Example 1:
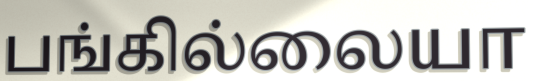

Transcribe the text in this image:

பங்கில்லையா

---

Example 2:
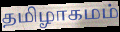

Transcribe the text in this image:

தமிழாகமம்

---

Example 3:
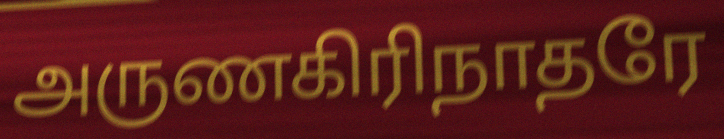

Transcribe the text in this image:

அருணகிரிநாதரே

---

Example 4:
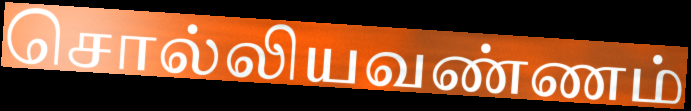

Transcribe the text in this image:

சொல்லியவண்ணம்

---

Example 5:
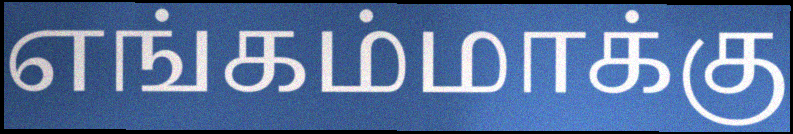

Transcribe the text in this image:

எங்கம்மாக்கு